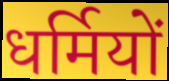
धर्मियों